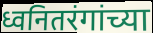
ध्वनितरंगांच्या